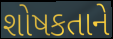
શોષકતાને